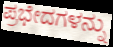
ಪ್ರಭೇದಗಳನ್ನು